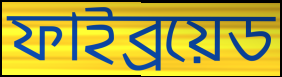
ফাইব্রয়েড